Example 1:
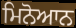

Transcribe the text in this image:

ਮਿਨੋਆਨ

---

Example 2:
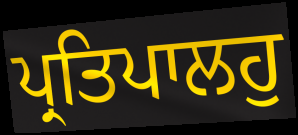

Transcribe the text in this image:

ਪ੍ਰਤਿਪਾਲਹੁ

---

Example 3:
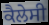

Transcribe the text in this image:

ਕੈਲੇਸੀ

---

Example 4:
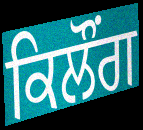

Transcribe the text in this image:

ਕਿਲੌਂਗ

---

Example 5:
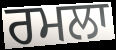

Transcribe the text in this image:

ਰਮਲਾ